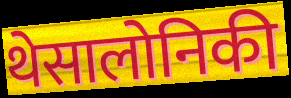
थेसालोनिकी